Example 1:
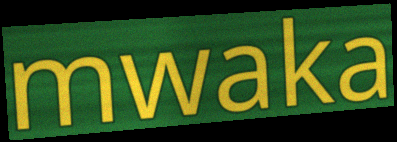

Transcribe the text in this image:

mwaka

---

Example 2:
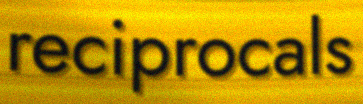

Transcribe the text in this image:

reciprocals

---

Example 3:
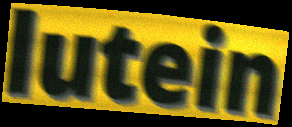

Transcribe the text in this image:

lutein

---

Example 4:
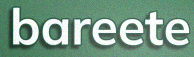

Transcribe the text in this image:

bareete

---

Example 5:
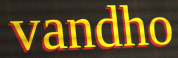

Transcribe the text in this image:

vandho